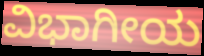
ವಿಭಾಗೀಯ